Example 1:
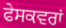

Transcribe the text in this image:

ਫੇਸਕਵਰਾਂ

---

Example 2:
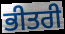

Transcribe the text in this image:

ਭੀਤਰੀ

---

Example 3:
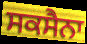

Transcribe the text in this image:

ਸਕਸੈਨਾ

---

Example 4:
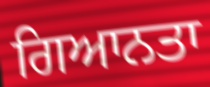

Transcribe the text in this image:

ਗਿਆਨਤਾ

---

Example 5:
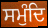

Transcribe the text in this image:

ਸਮੁੰਦਿ